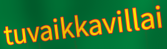
tuvaikkavillai